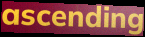
ascending